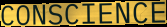
CONSCIENCE